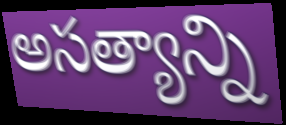
అసత్యాన్ని